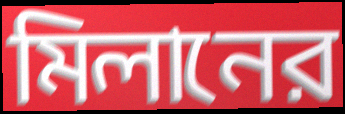
মিলানের